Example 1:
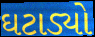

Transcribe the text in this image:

ઘટાડ્યો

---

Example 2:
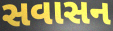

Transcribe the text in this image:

સવાસન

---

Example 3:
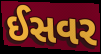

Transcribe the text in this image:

ઈસવર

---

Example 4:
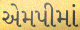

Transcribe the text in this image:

એમપીમાં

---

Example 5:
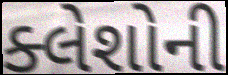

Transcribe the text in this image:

ક્લેશોની